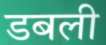
डबली